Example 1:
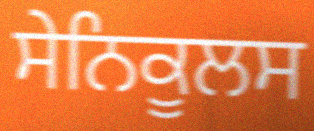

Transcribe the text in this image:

ਸੇਨਿਕੂਲਸ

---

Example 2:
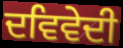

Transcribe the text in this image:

ਦਵਿਵੇਦੀ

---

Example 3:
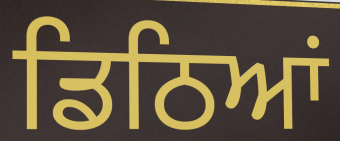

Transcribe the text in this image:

ਡਿਠਿਆਂ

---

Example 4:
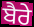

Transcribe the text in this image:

ਬੈਰੇ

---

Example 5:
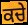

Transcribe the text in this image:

ਕਚੇ